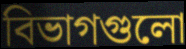
বিভাগগুলো